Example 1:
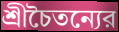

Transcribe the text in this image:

শ্রীচৈতন্যের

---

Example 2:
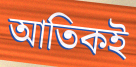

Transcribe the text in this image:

আতিকই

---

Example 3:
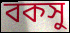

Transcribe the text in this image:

বকসু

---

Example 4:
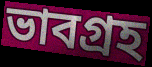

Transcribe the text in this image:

ভাবগ্রহ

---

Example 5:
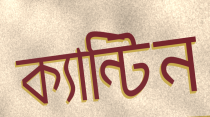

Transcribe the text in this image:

ক্যান্টিন